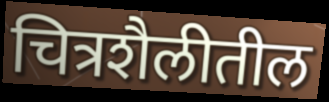
चित्रशैलीतील